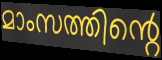
മാംസത്തിന്റെ